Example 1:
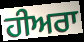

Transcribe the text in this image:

ਹੀਅਰਾ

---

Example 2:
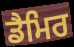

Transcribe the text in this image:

ਡੈਮਿਰ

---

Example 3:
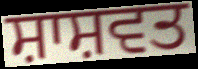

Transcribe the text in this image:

ਸ਼ਾਸ਼ਵਤ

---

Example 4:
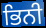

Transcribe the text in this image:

ਭਿਨੀ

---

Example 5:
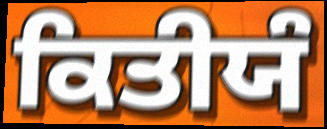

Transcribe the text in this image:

ਕਿਤੀਯੰ